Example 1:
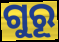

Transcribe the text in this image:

ଗୁରୂ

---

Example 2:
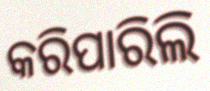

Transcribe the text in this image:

କରିପାରିଲି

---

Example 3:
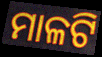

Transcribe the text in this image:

ମାଳଟି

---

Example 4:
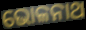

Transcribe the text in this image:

ଭୋଳନାଥ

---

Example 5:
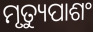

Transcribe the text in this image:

ମୃତ୍ୟୁପାଶଂ